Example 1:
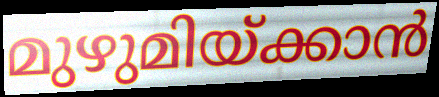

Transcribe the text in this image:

മുഴുമിയ്ക്കാൻ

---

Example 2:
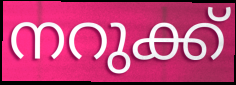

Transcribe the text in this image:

നറുക്ക്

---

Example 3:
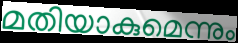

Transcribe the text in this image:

മതിയാകുമെന്നും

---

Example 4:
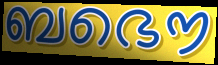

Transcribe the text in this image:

ബഭൌ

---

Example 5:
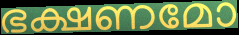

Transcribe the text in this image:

ഭക്ഷണമോ